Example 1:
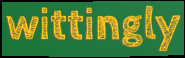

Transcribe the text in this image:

wittingly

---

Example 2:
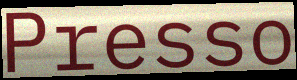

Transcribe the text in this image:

Presso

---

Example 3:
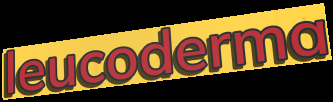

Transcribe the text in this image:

leucoderma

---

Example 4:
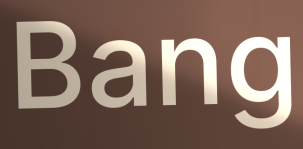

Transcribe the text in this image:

Bang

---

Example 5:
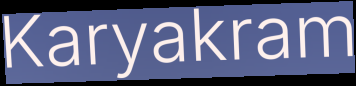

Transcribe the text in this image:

Karyakram